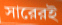
সারেরই